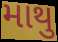
માથુ